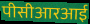
पीसीआरआई